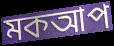
মকআপ